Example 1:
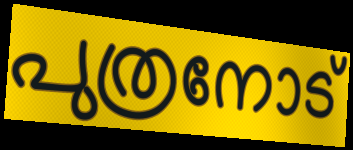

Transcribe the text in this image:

പുത്രനോട്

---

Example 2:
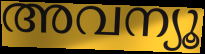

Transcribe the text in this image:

അവന്യൂ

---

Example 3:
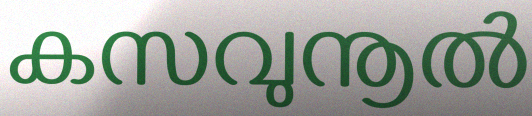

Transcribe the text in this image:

കസവുനൂൽ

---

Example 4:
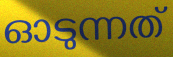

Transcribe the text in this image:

ഓടുന്നത്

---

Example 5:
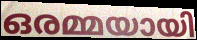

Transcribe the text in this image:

ഒരമ്മയായി